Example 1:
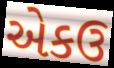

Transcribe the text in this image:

એકઉ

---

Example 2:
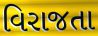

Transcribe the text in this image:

વિરાજતા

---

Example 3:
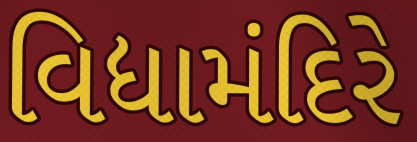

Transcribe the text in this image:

વિદ્યામંદિરે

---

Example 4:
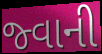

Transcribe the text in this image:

જ્વાની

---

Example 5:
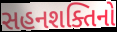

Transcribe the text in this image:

સહનશક્તિનો